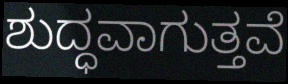
ಶುದ್ಧವಾಗುತ್ತವೆ